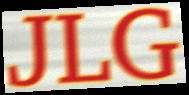
JLG